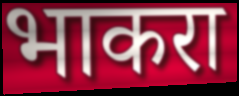
भाकरा